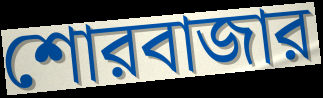
শোরবাজার